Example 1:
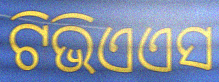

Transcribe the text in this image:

ଟିଭିଏଏସ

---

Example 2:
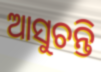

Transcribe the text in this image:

ଆସୁଚନ୍ତି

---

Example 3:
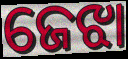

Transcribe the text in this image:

ଜେଝା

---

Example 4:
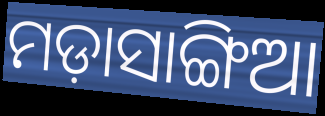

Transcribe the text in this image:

ମଡ଼ାସାଙ୍ଗିଆ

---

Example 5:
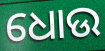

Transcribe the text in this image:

ଧୋଉ